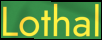
Lothal